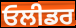
ਓਲੀਡਰ